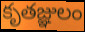
కృతజ్ఞులం